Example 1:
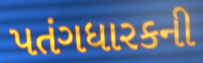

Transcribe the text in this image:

પતંગધારકની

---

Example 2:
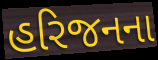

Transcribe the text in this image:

હરિજનના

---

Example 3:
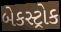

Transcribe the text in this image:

બેકસ્ટ્રોક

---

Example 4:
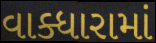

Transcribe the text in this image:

વાક્ધારામાં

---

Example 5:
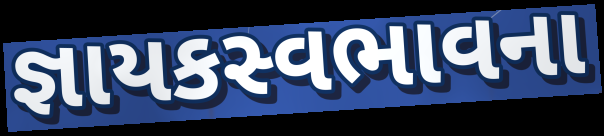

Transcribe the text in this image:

જ્ઞાયકસ્વભાવના